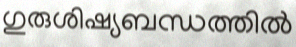
ഗുരുശിഷ്യബന്ധത്തിൽ